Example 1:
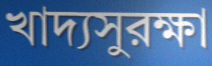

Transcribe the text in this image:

খাদ্যসুরক্ষা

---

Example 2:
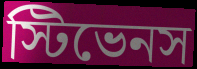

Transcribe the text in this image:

স্টিভেনস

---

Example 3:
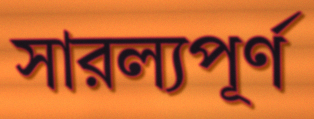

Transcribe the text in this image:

সারল্যপূর্ণ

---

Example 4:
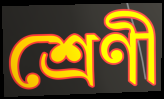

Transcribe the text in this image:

শ্রেণী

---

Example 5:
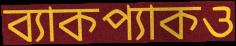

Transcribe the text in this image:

ব্যাকপ্যাকও